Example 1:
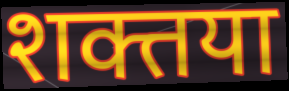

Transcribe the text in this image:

शक्तया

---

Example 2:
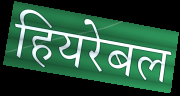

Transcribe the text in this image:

हियरेबल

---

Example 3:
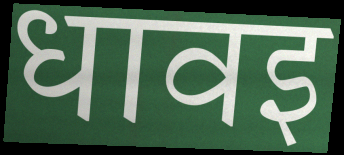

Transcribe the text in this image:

धावइ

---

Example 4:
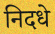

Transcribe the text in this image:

निदधे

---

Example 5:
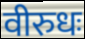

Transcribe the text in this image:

वीरुधः